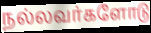
நல்லவர்களோடு